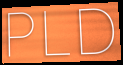
PLD